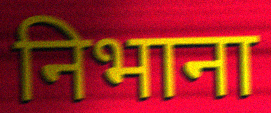
निभाना